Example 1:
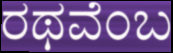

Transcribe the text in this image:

ರಥವೆಂಬ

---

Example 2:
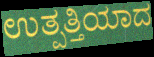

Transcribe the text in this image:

ಉತ್ಪತ್ತಿಯಾದ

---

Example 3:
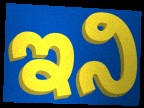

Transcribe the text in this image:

ಇನಿ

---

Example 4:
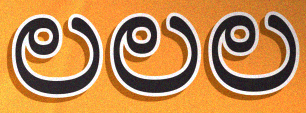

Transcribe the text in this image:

ಲಲಲ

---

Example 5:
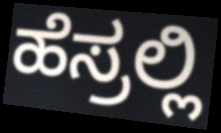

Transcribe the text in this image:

ಹೆಸ್ರಲ್ಲಿ